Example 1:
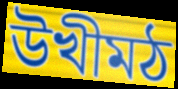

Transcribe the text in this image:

উখীমঠ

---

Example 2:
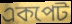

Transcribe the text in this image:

একপেট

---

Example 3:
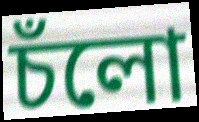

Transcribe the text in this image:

চঁলো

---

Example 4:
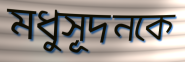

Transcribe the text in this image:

মধুসূদনকে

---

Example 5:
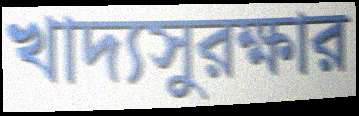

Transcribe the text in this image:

খাদ্যসুরক্ষার